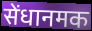
सेंधानमक